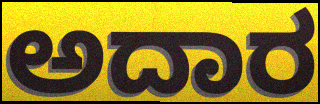
ಅದಾರ